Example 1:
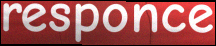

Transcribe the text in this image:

responce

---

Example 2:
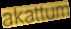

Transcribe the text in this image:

akattum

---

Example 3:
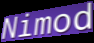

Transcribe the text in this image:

Nimod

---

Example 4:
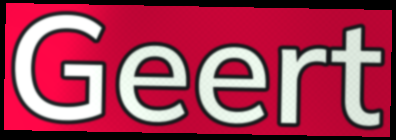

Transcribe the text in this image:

Geert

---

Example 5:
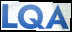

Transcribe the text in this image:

LQA